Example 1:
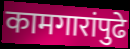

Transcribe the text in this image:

कामगारांपुढे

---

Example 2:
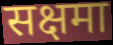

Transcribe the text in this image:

सक्षमा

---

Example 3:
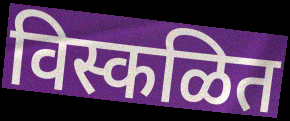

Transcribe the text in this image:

विस्कळित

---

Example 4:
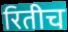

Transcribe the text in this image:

रितीच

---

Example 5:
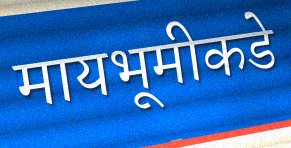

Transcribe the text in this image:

मायभूमीकडे